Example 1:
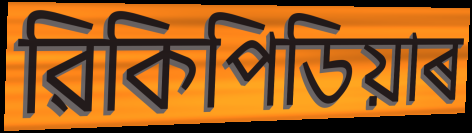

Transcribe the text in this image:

ৱিকিপিডিয়াৰ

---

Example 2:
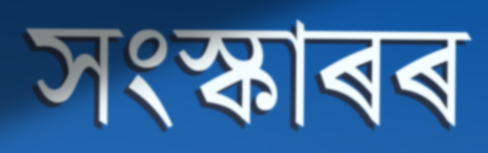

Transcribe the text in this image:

সংস্কাৰৰ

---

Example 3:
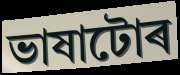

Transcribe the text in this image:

ভাষাটোৰ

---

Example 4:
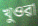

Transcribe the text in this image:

খুওৱা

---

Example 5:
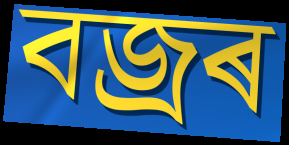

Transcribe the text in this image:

বজ্ৰৰ